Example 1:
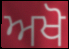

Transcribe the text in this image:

ਅਖੋ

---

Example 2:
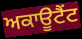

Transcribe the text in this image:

ਅਕਾਊਟੈਂਟ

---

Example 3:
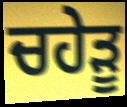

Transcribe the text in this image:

ਚਹੇਡ਼ੂ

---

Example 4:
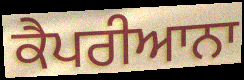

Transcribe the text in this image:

ਕੈਪਰੀਆਨਾ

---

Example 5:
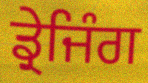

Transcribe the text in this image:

ਡ੍ਰੇਜਿੰਗ